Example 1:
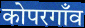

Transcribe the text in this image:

कोपरगाँव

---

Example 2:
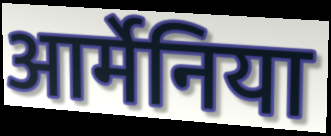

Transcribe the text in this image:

आर्मेनिया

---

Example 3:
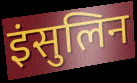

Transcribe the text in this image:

इंसुलिन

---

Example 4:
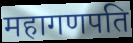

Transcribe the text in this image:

महागणपति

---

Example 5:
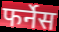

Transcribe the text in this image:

फर्नेस